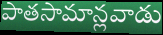
పాతసామాన్లవాడు